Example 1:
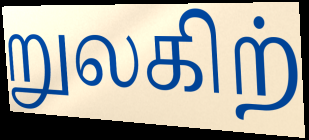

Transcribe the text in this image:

றுலகிற்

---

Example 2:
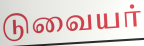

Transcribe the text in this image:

டுவையர்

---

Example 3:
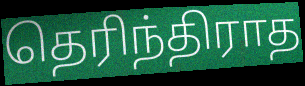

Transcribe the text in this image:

தெரிந்திராத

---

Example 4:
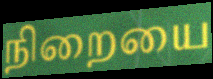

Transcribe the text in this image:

நிறையை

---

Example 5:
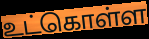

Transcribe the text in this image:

உட்கொள்ள